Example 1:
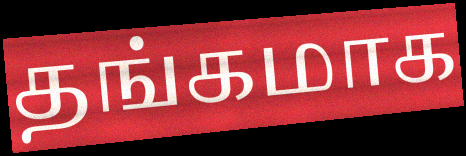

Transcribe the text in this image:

தங்கமாக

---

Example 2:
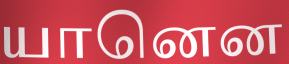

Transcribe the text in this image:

யானென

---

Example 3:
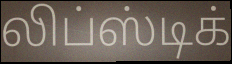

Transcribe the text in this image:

லிப்ஸ்டிக்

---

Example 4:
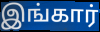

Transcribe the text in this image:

இங்கார்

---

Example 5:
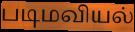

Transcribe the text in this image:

படிமவியல்